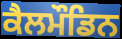
ਕੈਲਮੌਡਿਨ